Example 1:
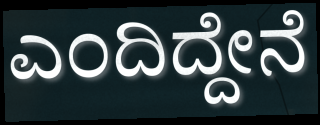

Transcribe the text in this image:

ಎಂದಿದ್ದೇನೆ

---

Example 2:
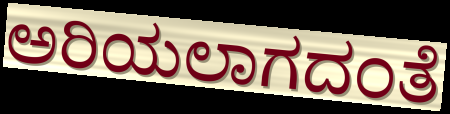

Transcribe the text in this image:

ಅರಿಯಲಾಗದಂತೆ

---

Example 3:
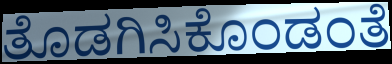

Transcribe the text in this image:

ತೊಡಗಿಸಿಕೊಂಡಂತೆ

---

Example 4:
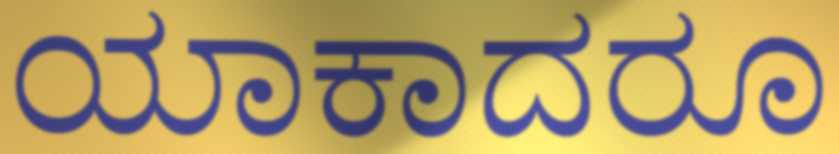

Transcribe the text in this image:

ಯಾಕಾದರೂ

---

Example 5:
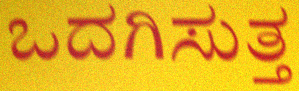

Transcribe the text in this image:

ಒದಗಿಸುತ್ತ